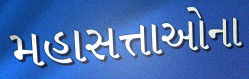
મહાસત્તાઓના